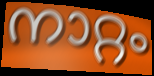
നാറ്റം